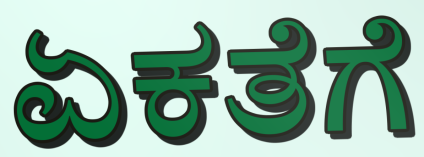
ಏಕತೆಗೆ